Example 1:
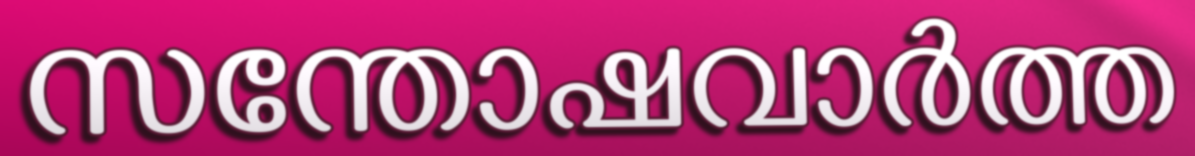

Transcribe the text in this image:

സന്തോഷവാർത്ത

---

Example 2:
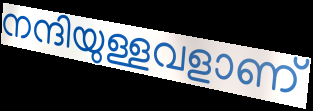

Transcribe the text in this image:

നന്ദിയുള്ളവളാണ്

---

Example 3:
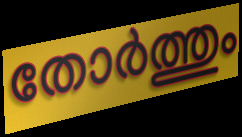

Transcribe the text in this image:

തോർത്തും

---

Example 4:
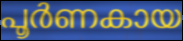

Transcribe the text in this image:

പൂർണകായ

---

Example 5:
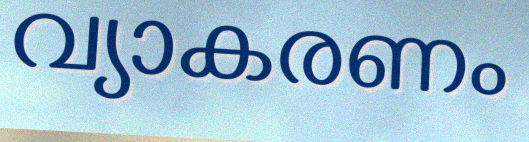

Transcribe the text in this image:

വ്യാകരണം